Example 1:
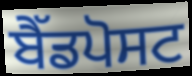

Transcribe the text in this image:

ਬੈੱਡਪੋਸਟ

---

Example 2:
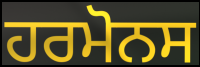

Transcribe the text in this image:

ਹਰਮੋਨਸ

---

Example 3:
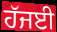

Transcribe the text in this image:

ਹੱਜਈ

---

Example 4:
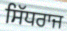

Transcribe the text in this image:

ਸਿੱਧਰਾਜ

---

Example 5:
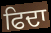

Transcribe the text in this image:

ਫਿਦਾ